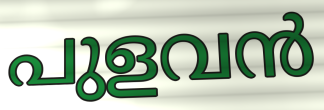
പുളവൻ